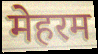
मेहरम